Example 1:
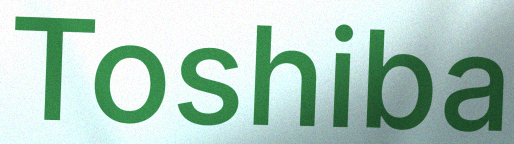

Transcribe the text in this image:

Toshiba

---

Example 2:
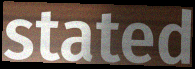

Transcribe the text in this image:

stated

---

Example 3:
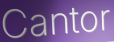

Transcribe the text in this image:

Cantor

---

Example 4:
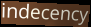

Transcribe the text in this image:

indecency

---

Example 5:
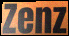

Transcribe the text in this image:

Zenz